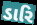
ડારિ